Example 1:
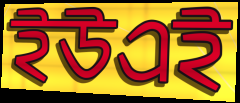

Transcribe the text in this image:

ইউএই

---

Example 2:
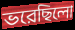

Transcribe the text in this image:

ভরেছিলো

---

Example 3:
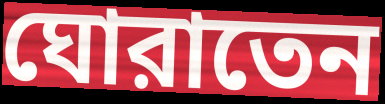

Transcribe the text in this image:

ঘোরাতেন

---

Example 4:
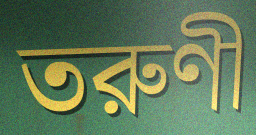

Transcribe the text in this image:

তরুণী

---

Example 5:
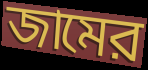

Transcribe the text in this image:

জামের